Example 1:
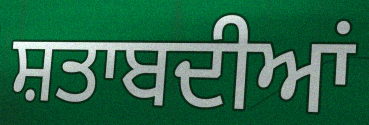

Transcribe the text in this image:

ਸ਼ਤਾਬਦੀਆਂ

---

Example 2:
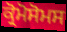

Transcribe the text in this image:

ਕ੍ਰੋਮੋਸੋਮਸ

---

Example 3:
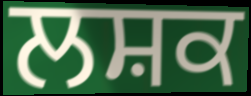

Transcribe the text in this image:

ਲਸ਼ਕ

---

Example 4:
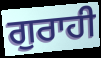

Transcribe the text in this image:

ਗੁਰਾਹੀ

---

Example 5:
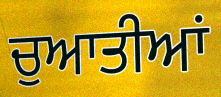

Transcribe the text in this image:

ਚੁਆਤੀਆਂ